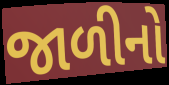
જાળીનો